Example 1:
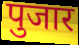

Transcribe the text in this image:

पुजार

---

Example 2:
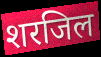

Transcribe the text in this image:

शरजिल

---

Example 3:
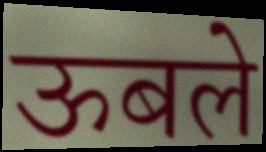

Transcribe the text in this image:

ऊबले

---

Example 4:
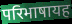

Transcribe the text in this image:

परिभाषायह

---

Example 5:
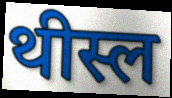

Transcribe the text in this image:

थीस्ल